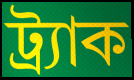
ট্র্যাক